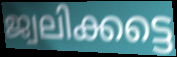
ജ്വലിക്കട്ടെ